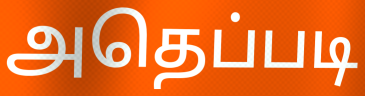
அதெப்படி